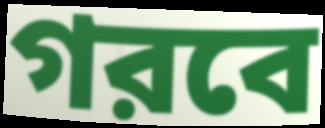
গরবে